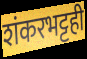
शंकरभट्टही